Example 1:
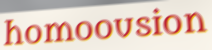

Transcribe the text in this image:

homoousion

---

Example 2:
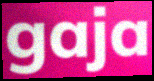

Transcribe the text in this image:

gaja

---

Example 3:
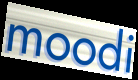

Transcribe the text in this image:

moodi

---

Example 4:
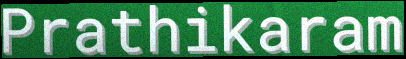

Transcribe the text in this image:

Prathikaram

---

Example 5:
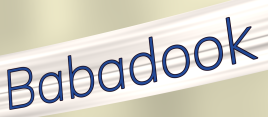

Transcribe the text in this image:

Babadook